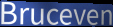
Bruceven